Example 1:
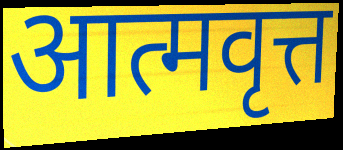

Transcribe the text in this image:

आत्मवृत्त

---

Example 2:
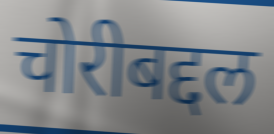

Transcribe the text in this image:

चोरीबद्दल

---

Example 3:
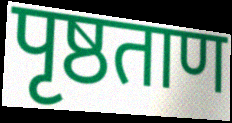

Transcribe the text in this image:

पृष्ठताण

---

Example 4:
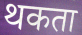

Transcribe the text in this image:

थकता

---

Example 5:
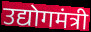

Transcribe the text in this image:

उद्योगमंत्री